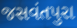
જસવંતપુરા